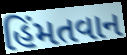
હિંમતવાન